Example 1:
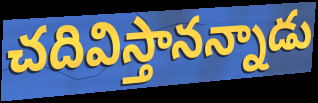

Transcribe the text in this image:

చదివిస్తానన్నాడు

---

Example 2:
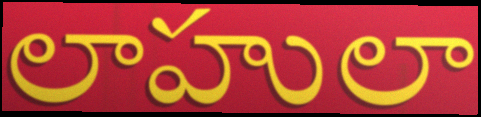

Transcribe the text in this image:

లాహులా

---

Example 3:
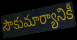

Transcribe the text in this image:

సౌకుమార్యానికీ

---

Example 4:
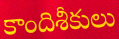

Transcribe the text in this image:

కాందిశీకులు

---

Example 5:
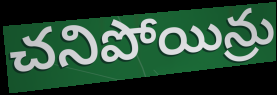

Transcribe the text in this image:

చనిపోయిన్రు